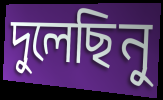
দুলেছিনু